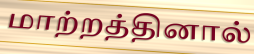
மாற்றத்தினால்